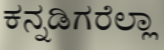
ಕನ್ನಡಿಗರೆಲ್ಲಾ